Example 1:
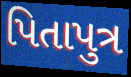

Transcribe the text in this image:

પિતાપુત્ર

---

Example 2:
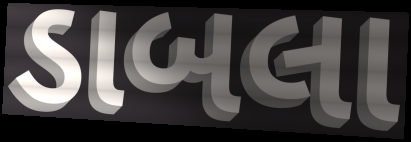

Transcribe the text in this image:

ડાબલા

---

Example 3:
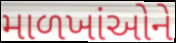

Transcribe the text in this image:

માળખાંઓને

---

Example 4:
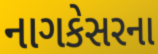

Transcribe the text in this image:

નાગકેસરના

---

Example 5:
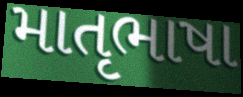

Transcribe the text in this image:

માતૃભાષા